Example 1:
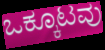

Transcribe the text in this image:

ಒಕ್ಕೂಟವು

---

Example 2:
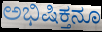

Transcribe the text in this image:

ಅಭಿಷಿಕ್ತನೂ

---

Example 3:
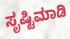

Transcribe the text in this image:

ಸೃಷ್ಟಿಮಾಡಿ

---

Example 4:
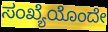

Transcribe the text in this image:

ಸಂಖ್ಯೆಯೊಂದೇ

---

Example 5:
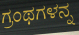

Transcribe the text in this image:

ಗ್ರಂಥಗಳನ್ನ